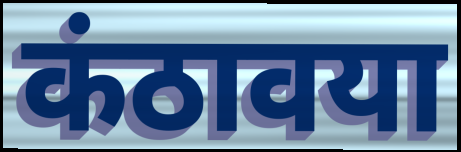
कंठावया